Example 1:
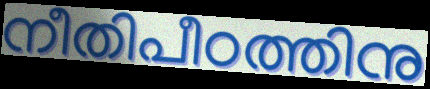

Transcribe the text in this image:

നീതിപീഠത്തിനു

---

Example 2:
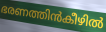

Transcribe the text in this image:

ഭരണത്തിൻകീഴിൽ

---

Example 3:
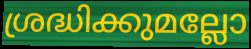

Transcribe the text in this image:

ശ്രദ്ധിക്കുമല്ലോ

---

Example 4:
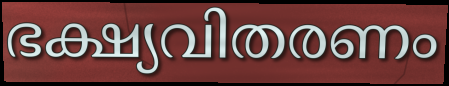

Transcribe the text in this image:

ഭക്ഷ്യവിതരണം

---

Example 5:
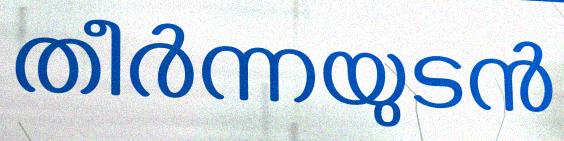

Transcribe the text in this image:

തീർന്നയുടൻ